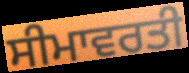
ਸੀਮਾਵਰਤੀ